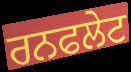
ਰਨਫਲੇਟ